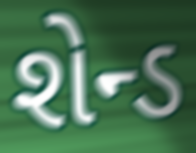
શેન્ડ